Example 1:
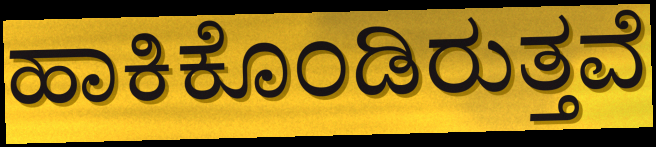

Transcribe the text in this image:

ಹಾಕಿಕೊಂಡಿರುತ್ತವೆ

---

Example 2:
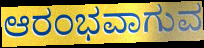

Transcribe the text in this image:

ಆರಂಭವಾಗುವ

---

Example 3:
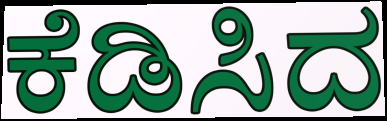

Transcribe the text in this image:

ಕೆಡಿಸಿದ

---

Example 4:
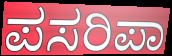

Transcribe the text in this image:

ಪಸರಿಪಾ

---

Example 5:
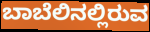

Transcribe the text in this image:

ಬಾಬೆಲಿನಲ್ಲಿರುವ